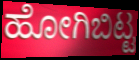
ಹೋಗಿಬಿಟ್ಟ